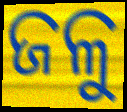
ଜଳୁ